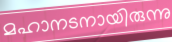
മഹാനടനായിരുന്നു